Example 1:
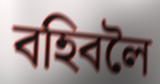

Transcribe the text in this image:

বহিবলৈ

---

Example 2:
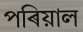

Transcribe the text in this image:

পৰিয়াল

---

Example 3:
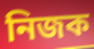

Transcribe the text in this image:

নিজক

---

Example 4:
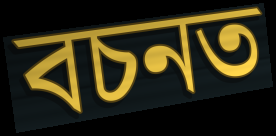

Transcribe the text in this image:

বচনত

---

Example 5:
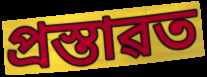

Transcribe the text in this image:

প্ৰস্তাৱত